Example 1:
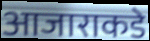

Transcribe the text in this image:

आजाराकडे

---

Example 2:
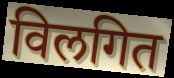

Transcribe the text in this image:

विलगित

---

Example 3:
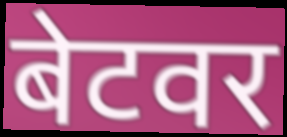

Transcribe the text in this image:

बेटवर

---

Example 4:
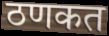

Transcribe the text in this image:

ठणकत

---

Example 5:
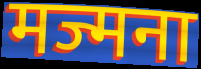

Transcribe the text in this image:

मज्मना